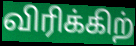
விரிக்கிற்